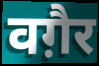
वग़ैर